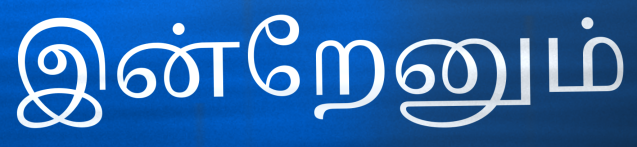
இன்றேனும்